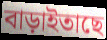
বাড়াইতাছে